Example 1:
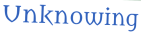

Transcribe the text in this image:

Unknowing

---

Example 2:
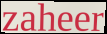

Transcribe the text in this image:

zaheer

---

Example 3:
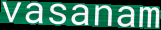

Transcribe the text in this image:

vasanam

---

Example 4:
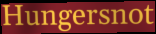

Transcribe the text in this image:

Hungersnot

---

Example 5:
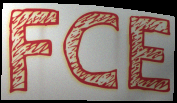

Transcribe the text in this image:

FCE